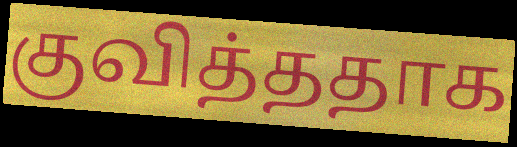
குவித்ததாக